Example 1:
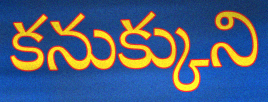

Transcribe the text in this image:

కనుక్కుని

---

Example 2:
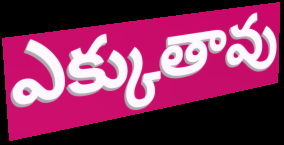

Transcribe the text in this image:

ఎక్కుతావు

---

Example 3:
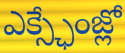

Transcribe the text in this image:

ఎక్స్ఛేంజ్లో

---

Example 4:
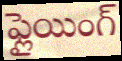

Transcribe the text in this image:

ఫ్లైయింగ్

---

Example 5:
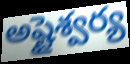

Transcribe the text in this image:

అష్టైశ్వర్య